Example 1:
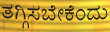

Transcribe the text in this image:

ತಗ್ಗಿಸಬೇಕೆಂದು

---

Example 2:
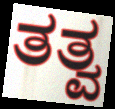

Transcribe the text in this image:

ತತ್ವ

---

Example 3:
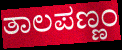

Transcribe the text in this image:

ತಾಲಪಣ್ಣಂ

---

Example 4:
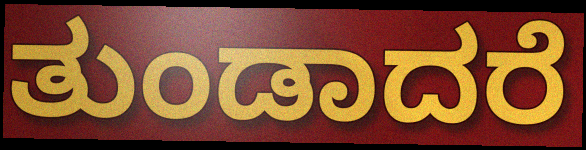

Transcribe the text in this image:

ತುಂಡಾದರೆ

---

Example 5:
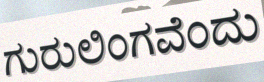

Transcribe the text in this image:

ಗುರುಲಿಂಗವೆಂದು